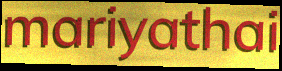
mariyathai